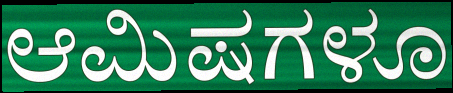
ಆಮಿಷಗಳೂ